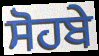
ਸੋਹਬੇ